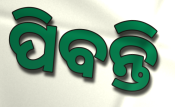
ପିବନ୍ତି